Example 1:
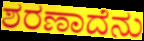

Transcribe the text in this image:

ಶರಣಾದೆನು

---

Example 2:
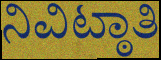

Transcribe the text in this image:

ನಿವಿಟ್ಠಾತಿ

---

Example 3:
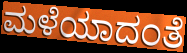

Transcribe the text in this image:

ಮಳೆಯಾದಂತೆ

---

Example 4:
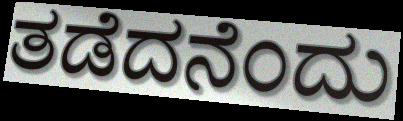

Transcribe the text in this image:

ತಡೆದನೆಂದು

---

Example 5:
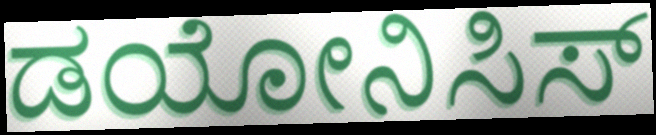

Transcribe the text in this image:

ಡಯೋನಿಸಿಸ್